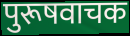
पुरूषवाचक